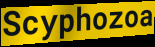
Scyphozoa